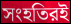
সংহতিরই